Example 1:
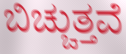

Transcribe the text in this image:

ಬಿಚ್ಚುತ್ತವೆ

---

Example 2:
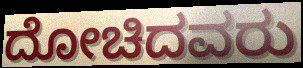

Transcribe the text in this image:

ದೋಚಿದವರು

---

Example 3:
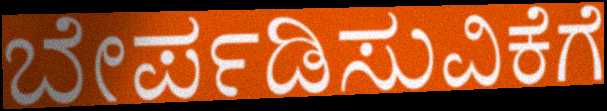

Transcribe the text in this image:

ಬೇರ್ಪಡಿಸುವಿಕೆಗೆ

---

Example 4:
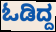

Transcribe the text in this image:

ಓಡಿದ್ದ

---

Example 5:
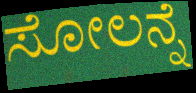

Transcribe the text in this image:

ಸೋಲನ್ನೆ